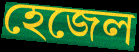
হেজেল